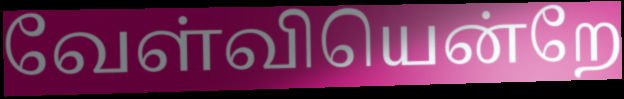
வேள்வியென்றே